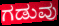
ಗಡುವು